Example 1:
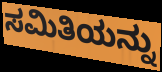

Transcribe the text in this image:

ಸಮಿತಿಯನ್ನು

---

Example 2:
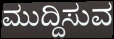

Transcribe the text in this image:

ಮುದ್ದಿಸುವ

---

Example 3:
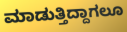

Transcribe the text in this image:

ಮಾಡುತ್ತಿದ್ದಾಗಲೂ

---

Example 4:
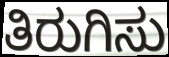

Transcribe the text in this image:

ತಿರುಗಿಸು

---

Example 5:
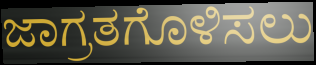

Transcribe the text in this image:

ಜಾಗ್ರತಗೊಳಿಸಲು